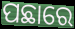
ପଛାରେ